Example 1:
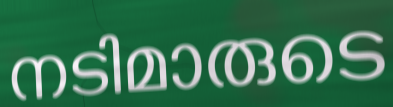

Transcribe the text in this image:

നടിമാരുടെ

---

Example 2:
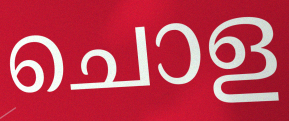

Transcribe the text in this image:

ചൊള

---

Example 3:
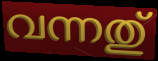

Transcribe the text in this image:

വന്നതു്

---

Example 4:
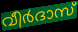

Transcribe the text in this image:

വീർദാസ്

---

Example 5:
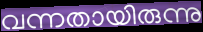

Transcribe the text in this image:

വന്നതായിരുന്നു